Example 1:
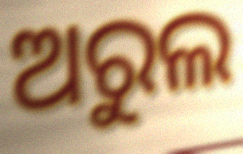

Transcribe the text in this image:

ଅରୁଲ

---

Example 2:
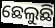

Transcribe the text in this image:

ଛେଲୁଛି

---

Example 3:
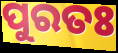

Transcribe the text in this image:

ପୁରତଃ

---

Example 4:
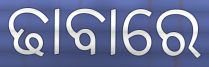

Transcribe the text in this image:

ଢାବାରେ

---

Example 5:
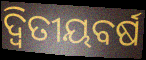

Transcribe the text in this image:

ଦ୍ୱିତୀୟବର୍ଷ